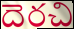
దెరచి